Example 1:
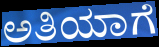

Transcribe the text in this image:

ಅತಿಯಾಗೆ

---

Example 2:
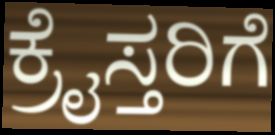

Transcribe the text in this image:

ಕ್ರೈಸ್ತರಿಗೆ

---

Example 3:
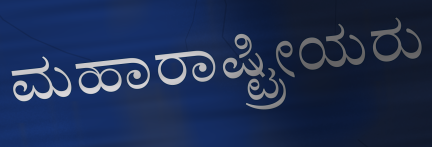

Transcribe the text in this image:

ಮಹಾರಾಷ್ಟ್ರೀಯರು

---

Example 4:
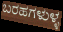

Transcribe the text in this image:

ಬರಹಗಳುಳ್ಳ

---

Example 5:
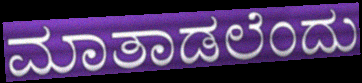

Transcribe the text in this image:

ಮಾತಾಡಲೆಂದು